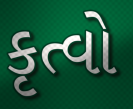
કૃત્વો